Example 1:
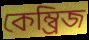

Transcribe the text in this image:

কেম্ব্রিজ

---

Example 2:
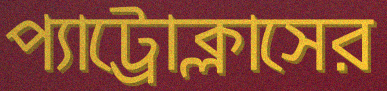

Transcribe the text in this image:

প্যাট্রোক্লাসের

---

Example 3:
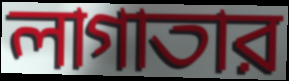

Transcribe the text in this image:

লাগাতার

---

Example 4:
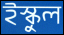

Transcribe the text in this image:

ইস্কুল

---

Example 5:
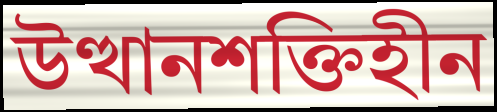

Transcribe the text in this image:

উত্থানশক্তিহীন